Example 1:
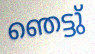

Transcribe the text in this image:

ഞെട്ടു്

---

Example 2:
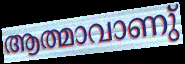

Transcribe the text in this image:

ആത്മാവാണു്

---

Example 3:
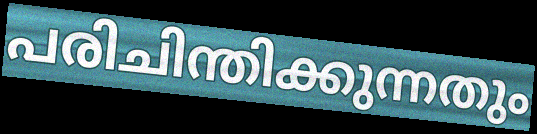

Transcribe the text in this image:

പരിചിന്തിക്കുന്നതും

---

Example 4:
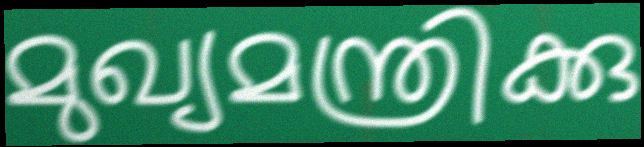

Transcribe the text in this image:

മുഖ്യമന്ത്രിക്കു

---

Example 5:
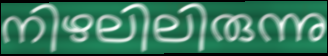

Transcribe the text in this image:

നിഴലിലിരുന്നു